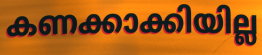
കണക്കാക്കിയില്ല